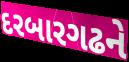
દરબારગઢને